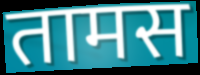
तामस